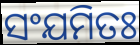
ସଂଯମିତଃ